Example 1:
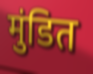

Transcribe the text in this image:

मुंडित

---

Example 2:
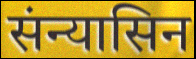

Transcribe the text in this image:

संन्यासिन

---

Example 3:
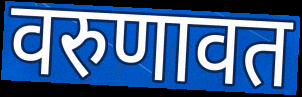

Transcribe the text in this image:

वरुणावत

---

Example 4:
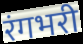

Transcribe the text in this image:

रंगभरी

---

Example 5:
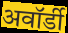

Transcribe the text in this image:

अवॉर्डी